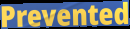
Prevented